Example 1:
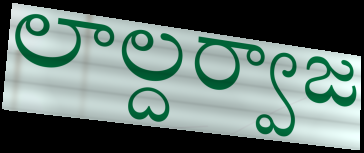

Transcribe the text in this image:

లాల్దర్వాజ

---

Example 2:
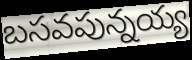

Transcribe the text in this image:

బసవపున్నయ్య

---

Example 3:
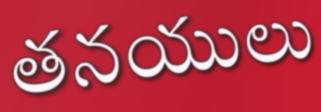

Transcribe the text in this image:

తనయులు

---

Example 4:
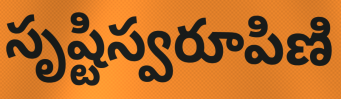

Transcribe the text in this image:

సృష్టిస్వరూపిణి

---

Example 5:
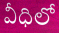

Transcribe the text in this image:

వీధిలో